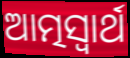
ଆତ୍ମସ୍ଵାର୍ଥ